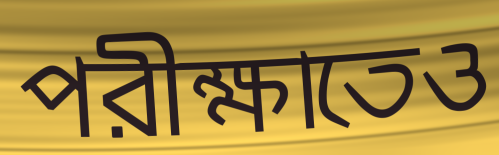
পরীক্ষাতেও